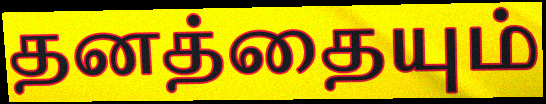
தனத்தையும்